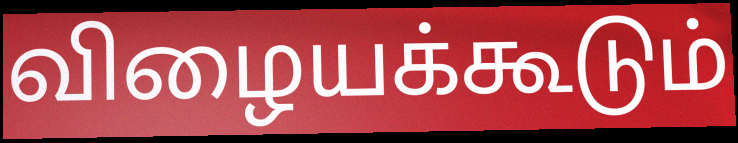
விழையக்கூடும்